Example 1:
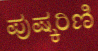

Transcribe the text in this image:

ಪುಷ್ಕರಿಣಿ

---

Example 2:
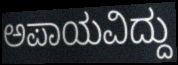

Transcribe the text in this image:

ಅಪಾಯವಿದ್ದು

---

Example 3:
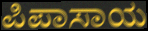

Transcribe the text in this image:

ಪಿಪಾಸಾಯ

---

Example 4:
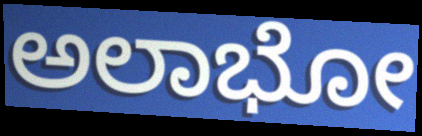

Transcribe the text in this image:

ಅಲಾಭೋ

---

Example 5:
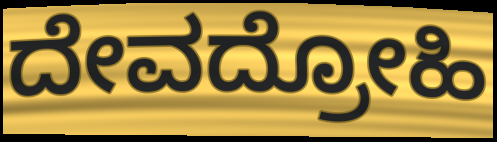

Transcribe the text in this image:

ದೇವದ್ರೋಹಿ